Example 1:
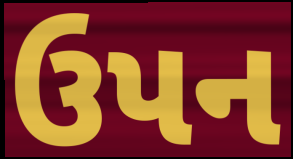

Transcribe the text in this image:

ઉપન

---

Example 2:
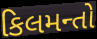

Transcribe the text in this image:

કિલમન્તો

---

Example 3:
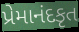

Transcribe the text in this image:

પ્રેમાનંદકૃત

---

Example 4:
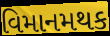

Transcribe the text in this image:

વિમાનમથક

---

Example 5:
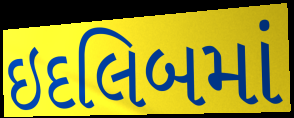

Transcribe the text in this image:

ઇદલિબમાં